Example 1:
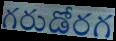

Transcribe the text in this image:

గరుడోరగ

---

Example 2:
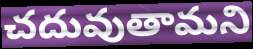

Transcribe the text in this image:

చదువుతామని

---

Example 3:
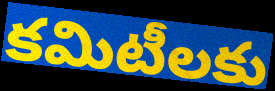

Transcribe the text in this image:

కమిటీలకు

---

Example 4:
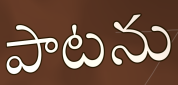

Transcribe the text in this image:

పాటను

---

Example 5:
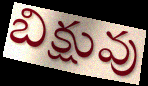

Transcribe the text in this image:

బిక్షువు